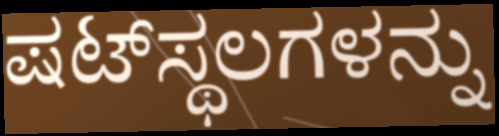
ಷಟ್‌ಸ್ಥಲಗಳನ್ನು